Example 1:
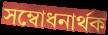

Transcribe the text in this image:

সম্বোধনাৰ্থক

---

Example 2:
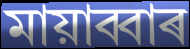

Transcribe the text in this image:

মায়াব্বাৰ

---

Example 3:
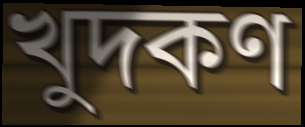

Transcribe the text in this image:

খুদকণ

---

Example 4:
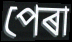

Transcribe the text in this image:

পেৰা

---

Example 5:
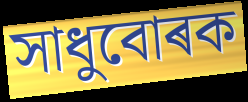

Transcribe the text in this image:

সাধুবোৰক